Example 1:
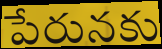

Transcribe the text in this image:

పేరునకు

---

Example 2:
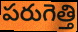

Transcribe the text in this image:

పరుగెత్తి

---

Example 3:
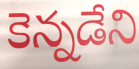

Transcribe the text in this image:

కెన్నడేని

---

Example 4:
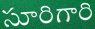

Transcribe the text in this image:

సూరిగారి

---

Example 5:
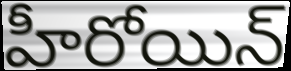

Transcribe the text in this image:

హీరోయిన్